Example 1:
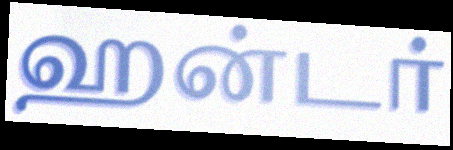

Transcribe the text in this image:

ஹன்டர்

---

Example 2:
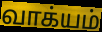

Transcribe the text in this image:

வாக்யம்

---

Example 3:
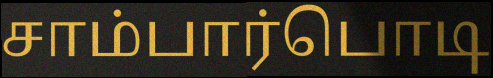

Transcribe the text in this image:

சாம்பார்பொடி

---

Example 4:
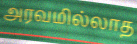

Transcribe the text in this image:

அரவமில்லாத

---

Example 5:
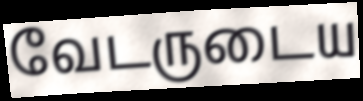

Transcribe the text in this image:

வேடருடைய